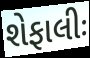
શેફાલીઃ